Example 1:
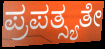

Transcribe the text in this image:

ಪ್ರಪತ್ಸ್ಯತೇ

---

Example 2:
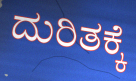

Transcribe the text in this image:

ದುರಿತಕ್ಕೆ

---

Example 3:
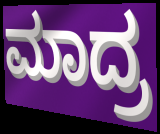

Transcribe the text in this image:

ಮಾದ್ರ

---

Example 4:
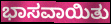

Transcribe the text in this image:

ಭಾಸವಾಯಿತು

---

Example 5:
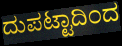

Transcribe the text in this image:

ದುಪಟ್ಟಾದಿಂದ